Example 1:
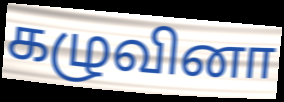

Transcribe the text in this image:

கழுவினா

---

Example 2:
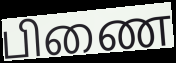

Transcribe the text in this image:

பிணை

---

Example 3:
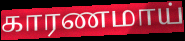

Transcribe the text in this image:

காரணமாய்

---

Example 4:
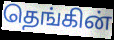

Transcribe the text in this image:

தெங்கின்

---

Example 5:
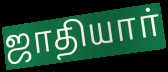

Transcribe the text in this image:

ஜாதியார்